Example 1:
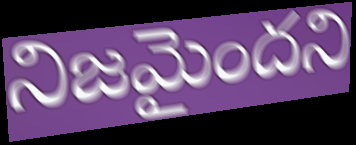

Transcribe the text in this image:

నిజమైందని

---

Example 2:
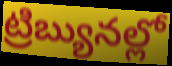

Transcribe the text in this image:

ట్రిబ్యునల్లో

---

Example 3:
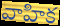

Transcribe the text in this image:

వాహిక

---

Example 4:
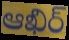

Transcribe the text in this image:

ఆఖిర్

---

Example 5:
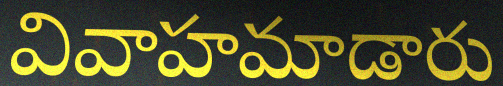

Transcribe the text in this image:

వివాహమాడారు